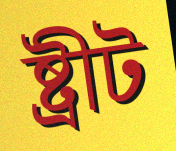
ষ্ট্ৰীট